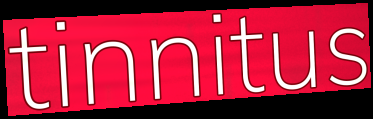
tinnitus